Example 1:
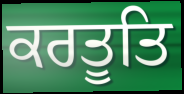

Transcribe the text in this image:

ਕਰਤੂਤਿ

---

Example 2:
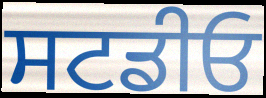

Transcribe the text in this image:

ਸਟਡੀਓ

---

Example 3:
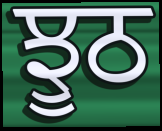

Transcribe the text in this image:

ਝੂਠ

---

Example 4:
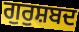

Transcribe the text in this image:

ਗੁਰੁਸ਼ਬਦ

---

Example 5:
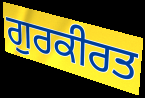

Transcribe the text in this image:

ਗੁਰਕੀਰਤ